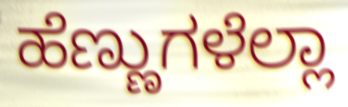
ಹೆಣ್ಣುಗಳೆಲ್ಲಾ